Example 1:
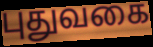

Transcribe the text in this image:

புதுவகை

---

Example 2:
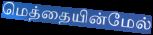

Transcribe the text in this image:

மெத்தையின்மேல்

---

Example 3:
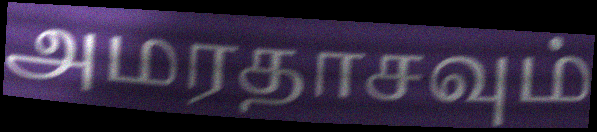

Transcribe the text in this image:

அமரதாசவும்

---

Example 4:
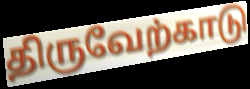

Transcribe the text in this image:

திருவேற்காடு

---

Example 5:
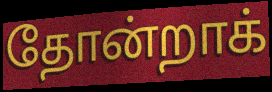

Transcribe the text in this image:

தோன்றாக்